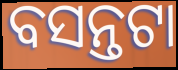
ବସନ୍ତଟା